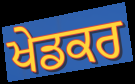
ਖੇਡਕਰ